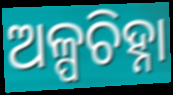
ଅଳ୍ପଚିହ୍ନା